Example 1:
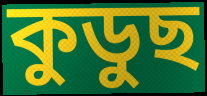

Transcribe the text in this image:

কুডুছ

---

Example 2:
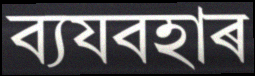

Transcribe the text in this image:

ব্যযবহাৰ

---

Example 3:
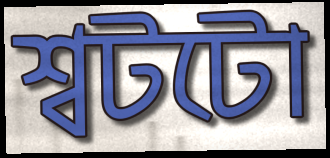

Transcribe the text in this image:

শ্বটটো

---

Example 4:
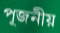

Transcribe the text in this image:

পূজনীয়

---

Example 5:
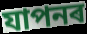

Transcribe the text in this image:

যাপনৰ